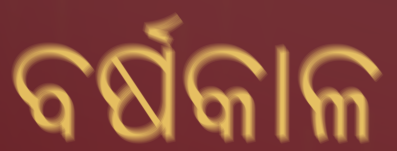
ବର୍ଷକାଳ